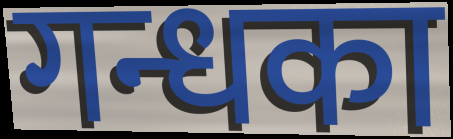
गन्धका